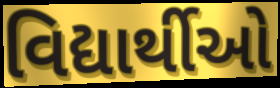
વિદ્યાર્થીઓ